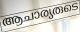
ആചാര്യരുടെ